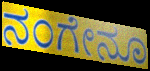
ನಂಗೇನೂ